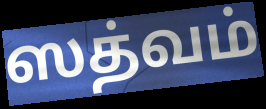
ஸத்வம்